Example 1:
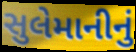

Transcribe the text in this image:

સુલેમાનીનું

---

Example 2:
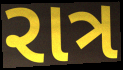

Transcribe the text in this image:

રાત્ર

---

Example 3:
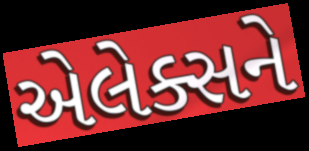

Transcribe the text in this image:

એલેક્સને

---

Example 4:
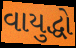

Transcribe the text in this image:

વાયુદ્ધો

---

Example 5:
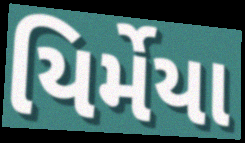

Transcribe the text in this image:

યિર્મેયા